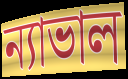
ন্যাভাল